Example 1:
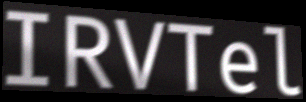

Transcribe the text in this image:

IRVTel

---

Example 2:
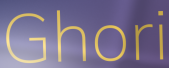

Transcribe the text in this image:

Ghori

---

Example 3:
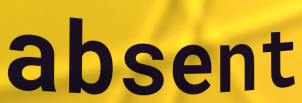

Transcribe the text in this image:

absent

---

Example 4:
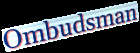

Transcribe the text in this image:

Ombudsman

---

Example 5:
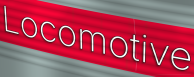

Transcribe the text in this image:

Locomotive